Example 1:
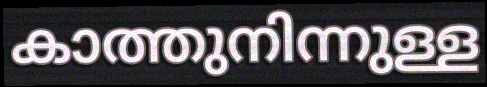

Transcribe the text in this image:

കാത്തുനിന്നുള്ള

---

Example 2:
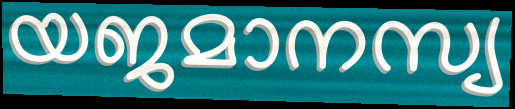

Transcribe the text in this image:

യജമാനസ്യ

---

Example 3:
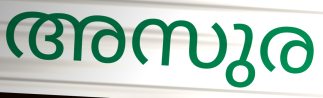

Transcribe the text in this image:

അസുര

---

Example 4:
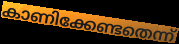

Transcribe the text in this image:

കാണിക്കേണ്ടതെന്ന്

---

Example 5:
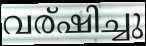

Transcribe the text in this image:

വര്ഷിച്ചു